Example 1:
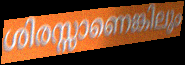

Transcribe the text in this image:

ശിരസ്സാണെങ്കിലും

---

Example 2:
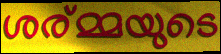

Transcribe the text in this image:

ശര്മ്മയുടെ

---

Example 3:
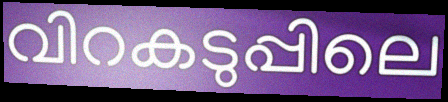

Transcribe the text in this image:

വിറകടുപ്പിലെ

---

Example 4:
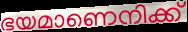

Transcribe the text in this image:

ഭയമാണെനിക്ക്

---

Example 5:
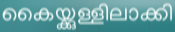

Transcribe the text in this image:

കൈയ്ക്കുള്ളിലാക്കി